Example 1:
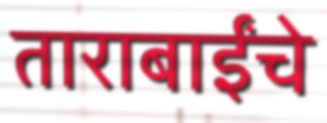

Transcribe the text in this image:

ताराबाईंचे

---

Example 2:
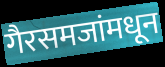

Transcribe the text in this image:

गैरसमजांमधून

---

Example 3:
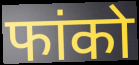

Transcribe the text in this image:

फांको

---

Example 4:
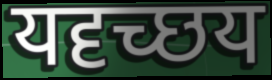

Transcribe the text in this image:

यदृच्छय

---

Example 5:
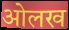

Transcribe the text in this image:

ओलख